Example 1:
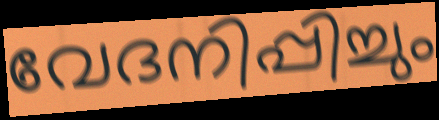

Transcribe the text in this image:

വേദനിപ്പിച്ചും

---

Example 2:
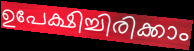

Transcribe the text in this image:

ഉപേക്ഷിച്ചിരിക്കാം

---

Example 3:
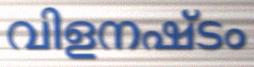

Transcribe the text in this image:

വിളനഷ്ടം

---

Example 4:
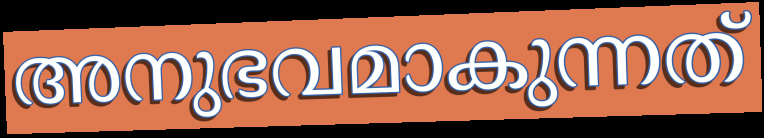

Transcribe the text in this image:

അനുഭവമാകുന്നത്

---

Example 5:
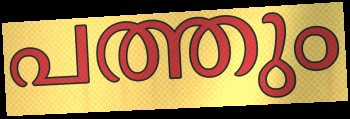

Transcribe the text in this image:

പത്തും